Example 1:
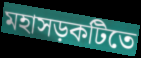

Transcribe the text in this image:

মহাসড়কটিতে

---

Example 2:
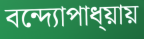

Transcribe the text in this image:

বন্দ্যোপাধ্য়ায়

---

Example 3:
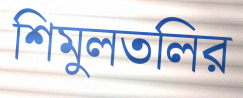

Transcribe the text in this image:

শিমুলতলির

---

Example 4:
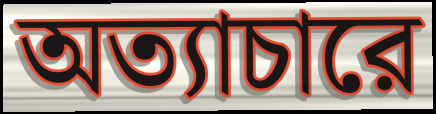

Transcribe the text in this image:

অত্যাচারে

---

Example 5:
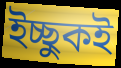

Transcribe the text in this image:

ইচ্ছুকই